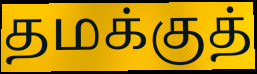
தமக்குத்